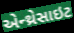
એન્થ્રેસાઇટ